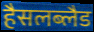
हैसलब्लैड